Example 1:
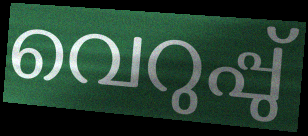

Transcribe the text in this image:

വെറുപ്പു്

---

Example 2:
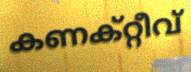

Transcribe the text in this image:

കണക്റ്റീവ്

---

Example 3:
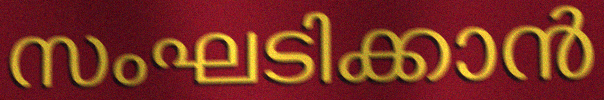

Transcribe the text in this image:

സംഘടിക്കാൻ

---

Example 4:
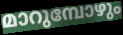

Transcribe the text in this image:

മാറുമ്പോഴും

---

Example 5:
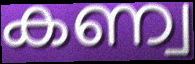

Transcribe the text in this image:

കണ്വ